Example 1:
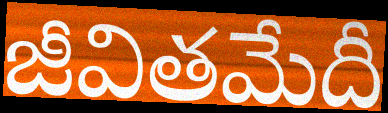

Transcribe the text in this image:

జీవితమేదీ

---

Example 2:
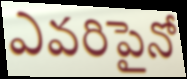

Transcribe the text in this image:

ఎవరిపైనో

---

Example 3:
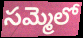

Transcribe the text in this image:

సమ్మెలో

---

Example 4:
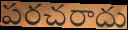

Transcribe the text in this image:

పరచరాదు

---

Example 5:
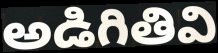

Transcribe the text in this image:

అడిగితివి